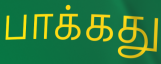
பாக்கது